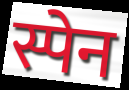
स्पेन